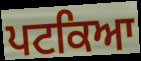
ਪਟਕਿਆ